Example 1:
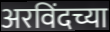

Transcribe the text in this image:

अरविंदच्या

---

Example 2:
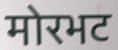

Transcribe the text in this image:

मोरभट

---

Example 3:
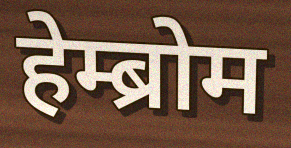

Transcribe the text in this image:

हेम्ब्रोम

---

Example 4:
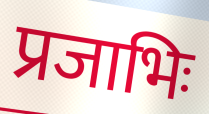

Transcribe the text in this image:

प्रजाभिः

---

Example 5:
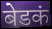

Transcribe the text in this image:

बेडकं